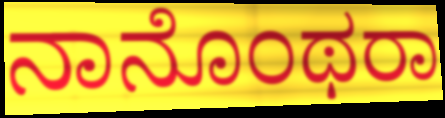
ನಾನೊಂಥರಾ